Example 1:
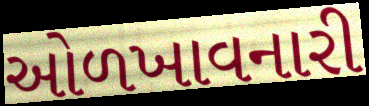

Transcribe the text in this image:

ઓળખાવનારી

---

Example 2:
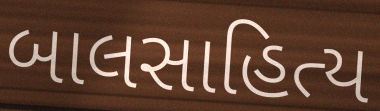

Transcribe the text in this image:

બાલસાહિત્ય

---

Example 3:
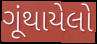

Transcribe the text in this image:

ગૂંથાયેલો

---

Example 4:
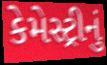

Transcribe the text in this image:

કેમેસ્ટ્રીનું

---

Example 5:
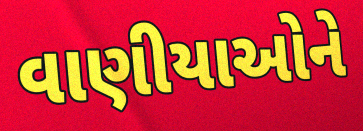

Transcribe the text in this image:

વાણીયાઓને